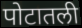
पोटातली